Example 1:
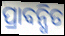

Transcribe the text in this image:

ପ୍ରାବନ୍ଧିତ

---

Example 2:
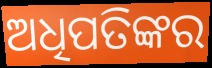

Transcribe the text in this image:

ଅଧିପତିଙ୍କର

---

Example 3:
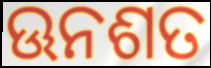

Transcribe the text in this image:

ଊନଶତ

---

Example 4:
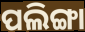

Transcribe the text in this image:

ପଲିଙ୍ଗା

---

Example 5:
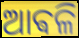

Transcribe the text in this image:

ଆଵଳି